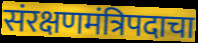
संरक्षणमंत्रिपदाचा